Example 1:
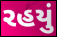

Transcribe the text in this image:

રહયું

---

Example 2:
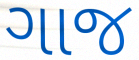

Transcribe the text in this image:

ગાજ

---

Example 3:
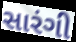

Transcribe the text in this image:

સારંગી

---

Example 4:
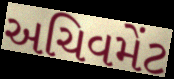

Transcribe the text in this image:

અચિવમેંટ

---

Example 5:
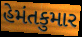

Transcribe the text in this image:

હેમંતકુમાર